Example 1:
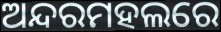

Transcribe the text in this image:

ଅନ୍ଦରମହଲରେ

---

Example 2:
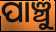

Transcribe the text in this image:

ପାଞ୍ଚୁ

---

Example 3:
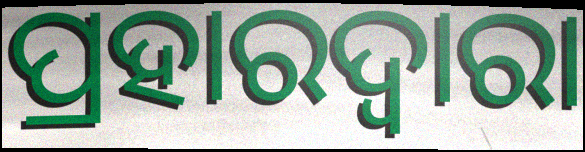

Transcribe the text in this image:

ପ୍ରହାରଦ୍ଵାରା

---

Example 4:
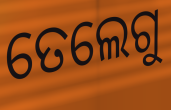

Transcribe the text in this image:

ତେଲେଗୁ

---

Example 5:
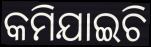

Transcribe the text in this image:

କମିଯାଇଚି